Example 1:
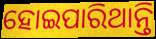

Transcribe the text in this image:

ହୋଇପାରିଥାନ୍ତି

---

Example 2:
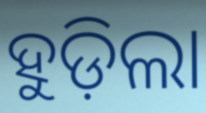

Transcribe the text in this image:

ହୁଡ଼ିଲା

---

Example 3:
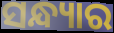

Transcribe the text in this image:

ସନ୍ଧ୍ୟାର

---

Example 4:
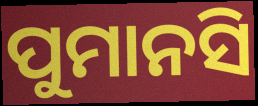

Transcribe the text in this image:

ପୁମାନସି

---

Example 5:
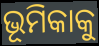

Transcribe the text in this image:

ଭୂମିକାକୁ